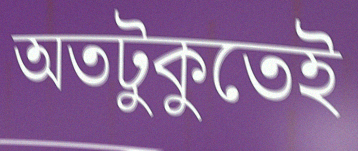
অতটুকুতেই